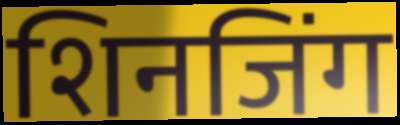
शिनजिंग